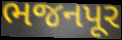
ભજનપૂર